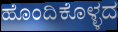
ಹೊಂದಿಕೊಳ್ಳದ